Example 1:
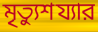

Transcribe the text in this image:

মৃত্যুশয্যার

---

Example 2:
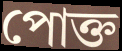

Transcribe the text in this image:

পোক্ত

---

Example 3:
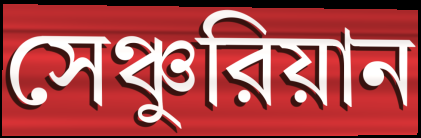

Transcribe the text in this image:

সেঞ্চুরিয়ান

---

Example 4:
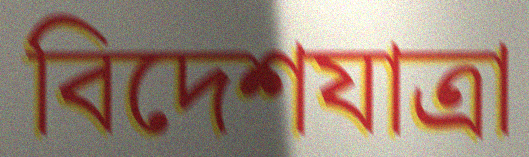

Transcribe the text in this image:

বিদেশযাত্রা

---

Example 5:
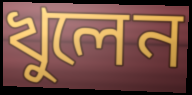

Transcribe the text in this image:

খুলেন